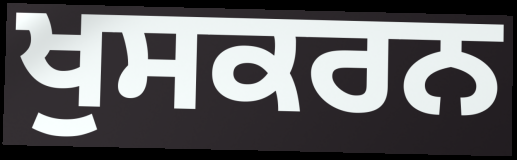
ਖੁਸਕਰਨ